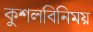
কুশলবিনিময়